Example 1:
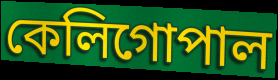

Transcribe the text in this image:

কেলিগোপাল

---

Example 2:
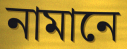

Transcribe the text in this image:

নামানে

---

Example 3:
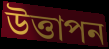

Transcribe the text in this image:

উত্তাপন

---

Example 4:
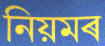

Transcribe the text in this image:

নিয়মৰ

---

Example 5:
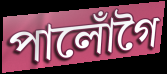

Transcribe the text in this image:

পালোঁগৈ